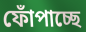
ফোঁপাচ্ছে